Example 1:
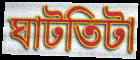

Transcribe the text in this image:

ঘাটতিটা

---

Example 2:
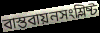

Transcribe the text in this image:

বাস্তবায়নসংশ্লিষ্ট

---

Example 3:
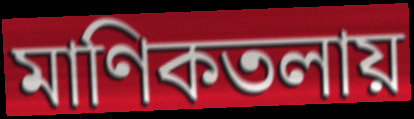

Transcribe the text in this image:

মাণিকতলায়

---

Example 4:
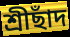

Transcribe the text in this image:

শ্রীছাঁদ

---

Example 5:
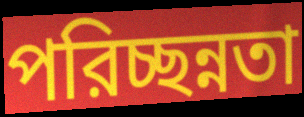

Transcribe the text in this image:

পরিচ্ছন্নতা